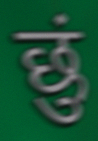
छुं